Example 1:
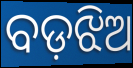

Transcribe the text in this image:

ବଡ଼ଝିଅ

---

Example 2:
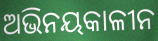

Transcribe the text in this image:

ଅଭିନୟକାଳୀନ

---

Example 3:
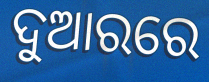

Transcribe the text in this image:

ଦୁଆରରେ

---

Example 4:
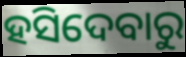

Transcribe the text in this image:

ହସିଦେବାରୁ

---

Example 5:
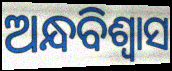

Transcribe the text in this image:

ଅନ୍ଧବିଶ୍ବାସ